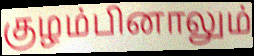
குழம்பினாலும்